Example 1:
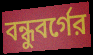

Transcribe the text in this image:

বন্ধুবর্গের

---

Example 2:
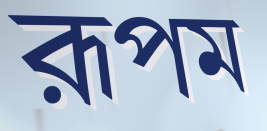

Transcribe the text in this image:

রূপম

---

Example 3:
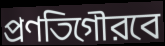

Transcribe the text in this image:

প্রণতিগৌরবে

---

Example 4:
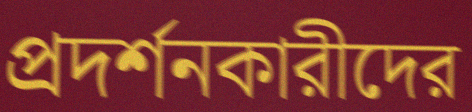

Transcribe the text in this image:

প্রদর্শনকারীদের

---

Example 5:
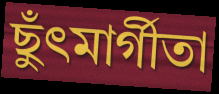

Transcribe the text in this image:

ছুঁৎমার্গীতা